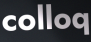
colloq